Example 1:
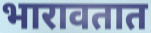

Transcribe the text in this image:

भारावतात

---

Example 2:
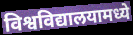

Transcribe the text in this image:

विश्वविद्यालयामध्ये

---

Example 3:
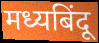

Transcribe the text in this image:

मध्यबिंदू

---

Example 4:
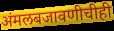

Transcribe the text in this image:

अंमलबजावणीचीही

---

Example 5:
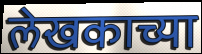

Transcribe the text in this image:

लेखकाच्या